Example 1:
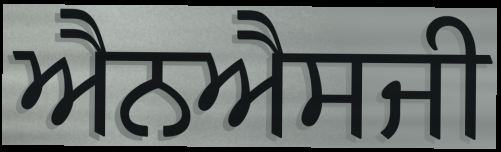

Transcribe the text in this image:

ਐਨਐਸਜੀ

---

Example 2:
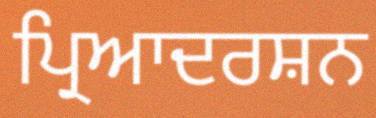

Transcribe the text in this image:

ਪ੍ਰਿਆਦਰਸ਼ਨ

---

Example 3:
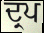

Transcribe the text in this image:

ਦ੍ਰਪ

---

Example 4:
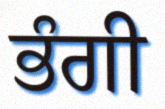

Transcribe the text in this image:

ਭੰਗੀ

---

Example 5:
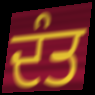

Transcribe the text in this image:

ਦੰਤ